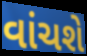
વાંચશે